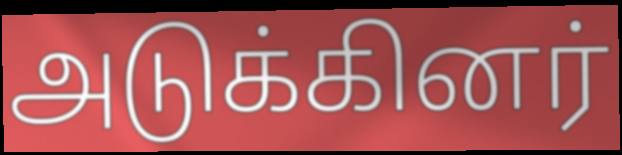
அடுக்கினர்